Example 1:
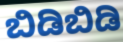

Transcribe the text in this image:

ಬಿಡಿಬಿಡಿ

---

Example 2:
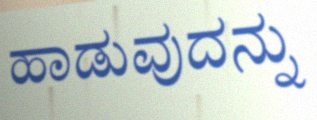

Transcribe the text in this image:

ಹಾಡುವುದನ್ನು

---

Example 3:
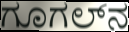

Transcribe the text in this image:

ಗೂಗಲ್‌ನ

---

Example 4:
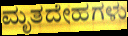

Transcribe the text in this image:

ಮೃತದೇಹಗಳು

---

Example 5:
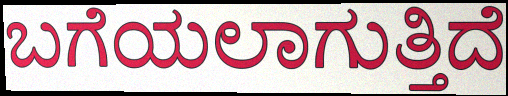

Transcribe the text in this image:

ಬಗೆಯಲಾಗುತ್ತಿದೆ